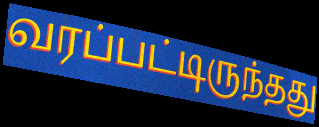
வரப்பட்டிருந்தது